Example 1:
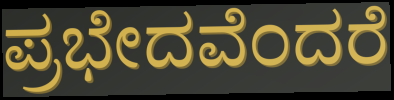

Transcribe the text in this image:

ಪ್ರಭೇದವೆಂದರೆ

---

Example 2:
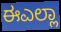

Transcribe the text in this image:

ಈಎಲ್ಲಾ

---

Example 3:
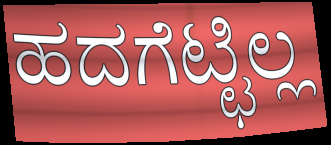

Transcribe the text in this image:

ಹದಗೆಟ್ಟಿಲ್ಲ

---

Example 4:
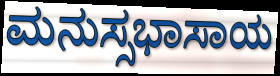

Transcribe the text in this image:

ಮನುಸ್ಸಭಾಸಾಯ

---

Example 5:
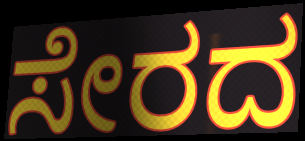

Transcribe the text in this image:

ಸೇರದ